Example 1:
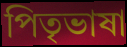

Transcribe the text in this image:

পিতৃভাষা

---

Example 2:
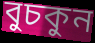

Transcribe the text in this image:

বুচকুন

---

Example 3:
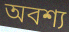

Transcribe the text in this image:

অবশ্য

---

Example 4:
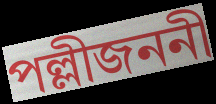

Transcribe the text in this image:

পল্লীজননী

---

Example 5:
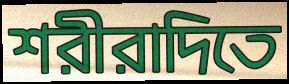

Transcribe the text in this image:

শরীরাদিতে